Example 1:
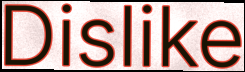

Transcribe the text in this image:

Dislike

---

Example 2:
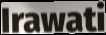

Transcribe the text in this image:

Irawati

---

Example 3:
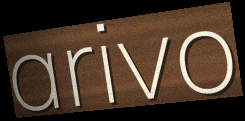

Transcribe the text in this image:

arivo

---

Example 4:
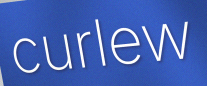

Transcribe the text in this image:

curlew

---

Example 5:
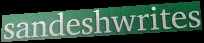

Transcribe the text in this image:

sandeshwrites